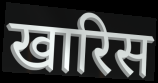
खारिस